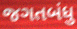
જગતબંધુ